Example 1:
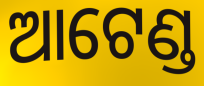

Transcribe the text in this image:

ଆଟେଣ୍ଡ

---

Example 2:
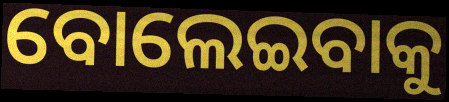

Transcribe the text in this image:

ବୋଲେଇବାକୁ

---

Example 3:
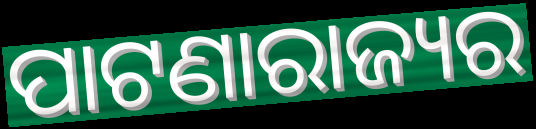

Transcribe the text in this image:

ପାଟଣାରାଜ୍ୟର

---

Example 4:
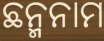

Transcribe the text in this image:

ଛନ୍ମନାମ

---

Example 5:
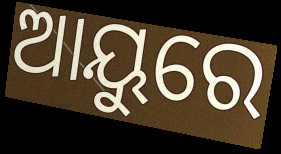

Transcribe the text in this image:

ଆୟୁରେ